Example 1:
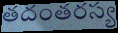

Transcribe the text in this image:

తదంతరస్య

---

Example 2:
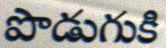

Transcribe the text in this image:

పొడుగుకి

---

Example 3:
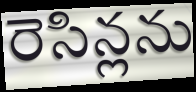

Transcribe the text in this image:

రెసిన్లను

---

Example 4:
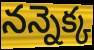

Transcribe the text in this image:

నన్నెక్క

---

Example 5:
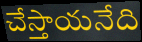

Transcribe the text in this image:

చేస్తాయనేది